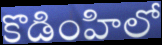
కొడింహిలో